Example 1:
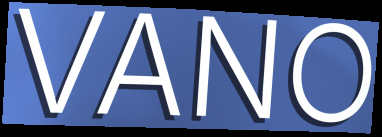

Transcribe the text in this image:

VANO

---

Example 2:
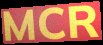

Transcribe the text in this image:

MCR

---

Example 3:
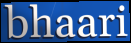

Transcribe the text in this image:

bhaari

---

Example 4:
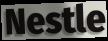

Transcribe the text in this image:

Nestle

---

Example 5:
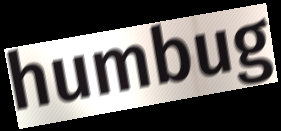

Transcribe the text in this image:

humbug